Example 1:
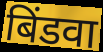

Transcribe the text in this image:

बिंडवा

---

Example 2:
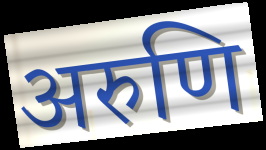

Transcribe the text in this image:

अरुणि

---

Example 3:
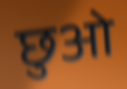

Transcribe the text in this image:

छुओ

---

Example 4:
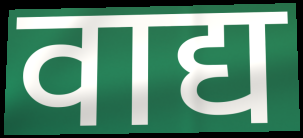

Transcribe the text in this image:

वाद्य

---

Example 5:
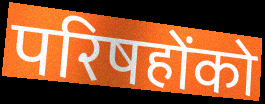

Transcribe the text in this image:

परिषहोंको